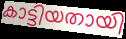
കാട്ടിയതായി